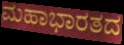
ಮಹಾಭಾರತದ